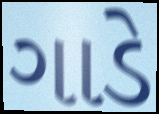
ગાડે